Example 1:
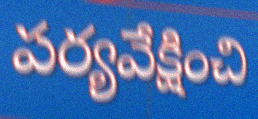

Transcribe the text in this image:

పర్యవేక్షించి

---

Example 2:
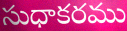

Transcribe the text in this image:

సుధాకరము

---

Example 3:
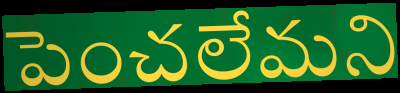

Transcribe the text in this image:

పెంచలేమని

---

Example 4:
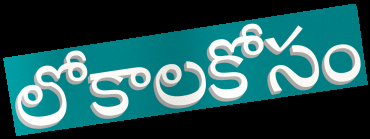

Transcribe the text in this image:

లోకాలకోసం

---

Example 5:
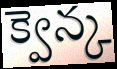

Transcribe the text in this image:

క్వెన్క